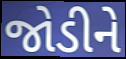
જોડીને